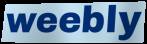
weebly